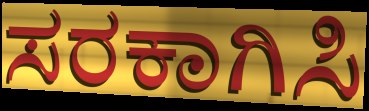
ಸರಕಾಗಿಸಿ